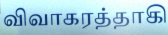
விவாகரத்தாகி